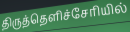
திருத்தெளிச்சேரியில்